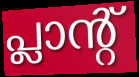
പ്ലാന്റ്